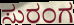
ಸುರಂಗ